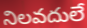
నిలవదులే